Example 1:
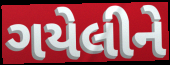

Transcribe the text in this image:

ગયેલીને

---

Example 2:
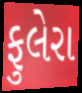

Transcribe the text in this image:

ફુલેરા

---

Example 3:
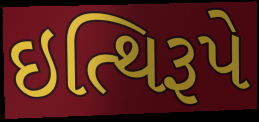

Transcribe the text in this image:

ઇત્થિરૂપે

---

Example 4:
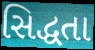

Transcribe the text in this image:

સિદ્ધતા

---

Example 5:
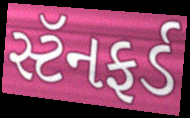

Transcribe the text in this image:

સ્ટૅનફર્ડ